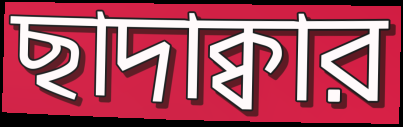
ছাদাক্বার